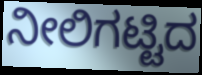
ನೀಲಿಗಟ್ಟಿದ